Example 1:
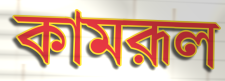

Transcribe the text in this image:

কামরূল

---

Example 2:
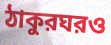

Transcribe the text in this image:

ঠাকুরঘরও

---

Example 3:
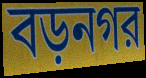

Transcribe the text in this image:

বড়নগর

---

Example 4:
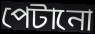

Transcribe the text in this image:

পেটানো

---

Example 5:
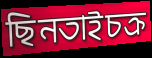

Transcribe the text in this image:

ছিনতাইচক্র